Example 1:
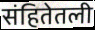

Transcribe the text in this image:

संहितेतली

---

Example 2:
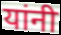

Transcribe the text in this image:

यांनी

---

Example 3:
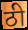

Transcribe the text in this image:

ठी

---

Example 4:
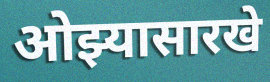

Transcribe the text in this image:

ओझ्यासारखे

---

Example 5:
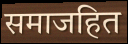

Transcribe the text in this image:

समाजहित